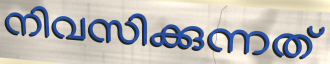
നിവസിക്കുന്നത്